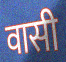
वासी